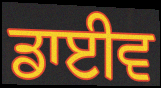
ਡਾਈਵ